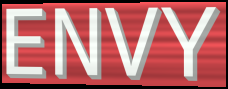
ENVY